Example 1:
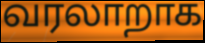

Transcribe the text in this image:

வரலாறாக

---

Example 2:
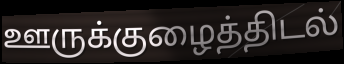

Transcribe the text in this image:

ஊருக்குழைத்திடல்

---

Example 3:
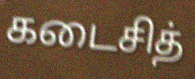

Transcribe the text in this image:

கடைசித்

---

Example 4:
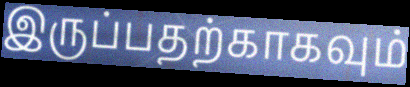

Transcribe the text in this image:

இருப்பதற்காகவும்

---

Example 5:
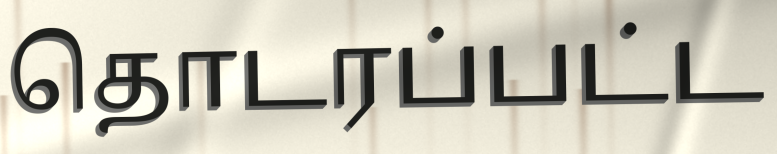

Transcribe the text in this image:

தொடரப்பட்ட